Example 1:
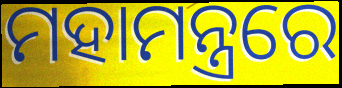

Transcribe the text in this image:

ମହାମନ୍ତ୍ରରେ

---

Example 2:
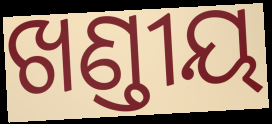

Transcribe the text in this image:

ଖଣ୍ଡୀୟ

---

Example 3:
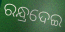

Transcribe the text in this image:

ରନ୍ଧ୍ରଦେଇ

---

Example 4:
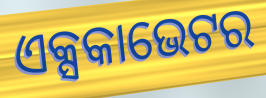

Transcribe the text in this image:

ଏକ୍ସକାଭେଟର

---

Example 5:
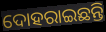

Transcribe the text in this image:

ଦୋହରାଇଛନ୍ତି